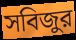
সবিজুর